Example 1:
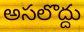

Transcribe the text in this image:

అసలొద్దు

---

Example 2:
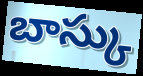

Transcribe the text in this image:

బాస్కు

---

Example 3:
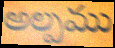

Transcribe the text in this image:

అల్పము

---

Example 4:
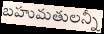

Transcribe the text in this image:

బహుమతులన్నీ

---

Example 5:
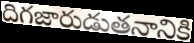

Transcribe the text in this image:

దిగజారుడుతనానికి